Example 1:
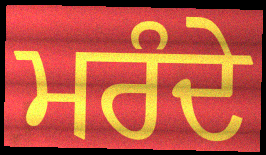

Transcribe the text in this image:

ਮਰੰਦੇ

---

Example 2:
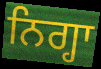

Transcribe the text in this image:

ਨਿਗ੍ਹਾ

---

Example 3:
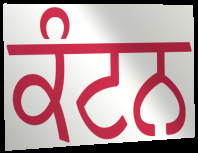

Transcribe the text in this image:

ਕੰਟਨ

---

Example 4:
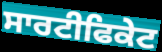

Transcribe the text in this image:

ਸਾਰਟੀਫਿਕੇਟ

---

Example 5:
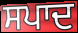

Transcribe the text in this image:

ਸਪਾਦ